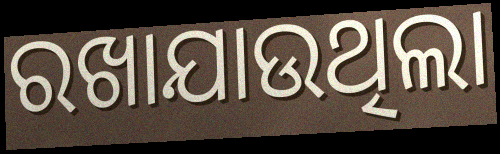
ରଖାଯାଉଥିଲା